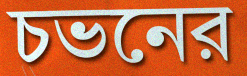
চভনের